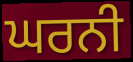
ਘਰਨੀ